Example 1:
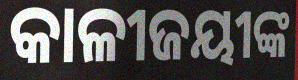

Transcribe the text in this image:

କାଳୀଜୟୀଙ୍କ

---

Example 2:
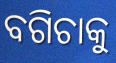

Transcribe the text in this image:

ବଗିଚାକୁ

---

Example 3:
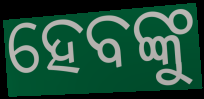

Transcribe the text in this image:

ହେବଙ୍କୁ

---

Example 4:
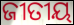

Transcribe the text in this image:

ଜୀତୀୟ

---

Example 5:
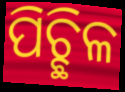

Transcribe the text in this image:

ପିଚ୍ଛିଳ